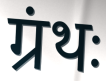
ग्रंथः